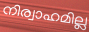
നിര്വാഹമില്ല